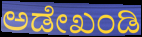
ಅಡೇಖಂಡಿ